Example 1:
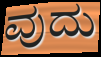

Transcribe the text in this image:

ವುದು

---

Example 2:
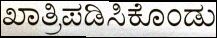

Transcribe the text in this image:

ಖಾತ್ರಿಪಡಿಸಿಕೊಂಡು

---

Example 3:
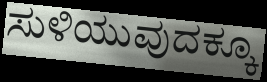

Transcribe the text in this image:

ಸುಳಿಯುವುದಕ್ಕೂ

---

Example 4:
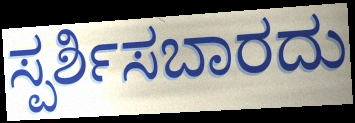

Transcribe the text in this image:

ಸ್ಪರ್ಶಿಸಬಾರದು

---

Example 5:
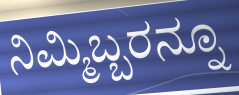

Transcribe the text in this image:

ನಿಮ್ಮಿಬ್ಬರನ್ನೂ